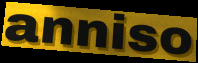
anniso